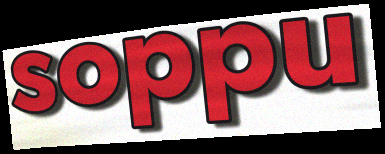
soppu